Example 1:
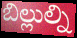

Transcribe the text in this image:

బిల్లుల్ని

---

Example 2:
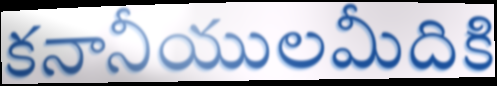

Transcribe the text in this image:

కనానీయులమీదికి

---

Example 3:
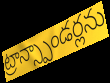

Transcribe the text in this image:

ట్రాన్స్పాండర్లను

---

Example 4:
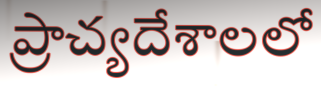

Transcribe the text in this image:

ప్రాచ్యదేశాలలో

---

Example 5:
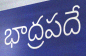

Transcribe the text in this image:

భాద్రపదే